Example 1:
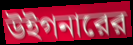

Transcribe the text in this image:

উইগনারের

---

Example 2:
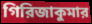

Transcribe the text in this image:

গিরিজাকুমার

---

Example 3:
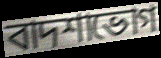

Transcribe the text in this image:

বাদশাভোগ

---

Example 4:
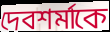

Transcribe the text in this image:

দেবশর্মাকে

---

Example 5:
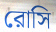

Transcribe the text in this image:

রোসি